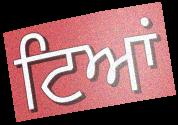
ਟਿਆਂ